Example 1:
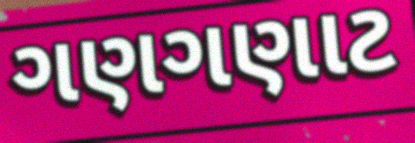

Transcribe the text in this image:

ગણગણાટ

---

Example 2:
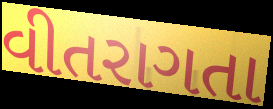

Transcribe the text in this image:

વીતરાગતા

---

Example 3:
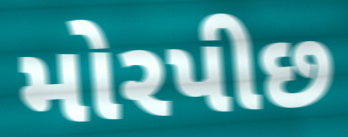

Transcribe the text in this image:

મોરપીછ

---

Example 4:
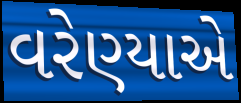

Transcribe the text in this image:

વરેણ્યાએ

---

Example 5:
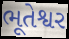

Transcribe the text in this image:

ભૂતેશ્વર